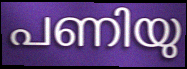
പണിയു